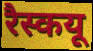
रैस्कयू